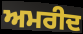
ਅਮਰੀਦ